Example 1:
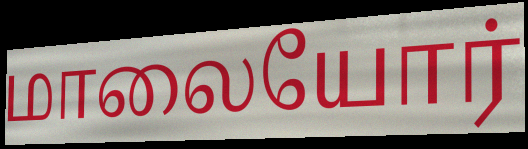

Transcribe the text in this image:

மாலையோர்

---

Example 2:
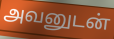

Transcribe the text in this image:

அவனுடன்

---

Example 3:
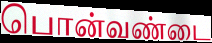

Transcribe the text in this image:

பொன்வண்டை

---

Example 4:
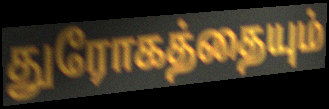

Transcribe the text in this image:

துரோகத்தையும்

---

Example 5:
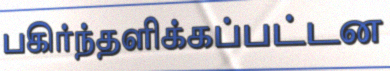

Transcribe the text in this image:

பகிர்ந்தளிக்கப்பட்டன